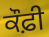
ਕੌਫ਼ੀ